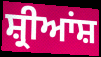
ਸ਼੍ਰੀਆਂਸ਼